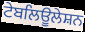
ਟੇਬਲਿਊਲੇਸ਼ਨ